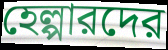
হেল্পারদের